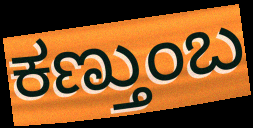
ಕಣ್ತುಂಬ